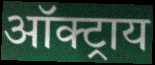
ऑक्ट्राय